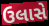
ઉલાસે